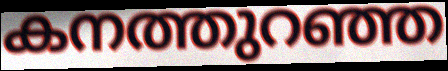
കനത്തുറഞ്ഞ